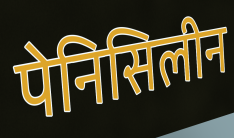
पेनिसिलीन